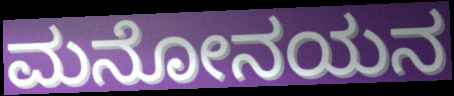
ಮನೋನಯನ